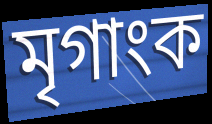
মৃগাংক